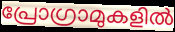
പ്രോഗ്രാമുകളിൽ